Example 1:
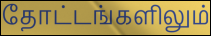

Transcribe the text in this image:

தோட்டங்களிலும்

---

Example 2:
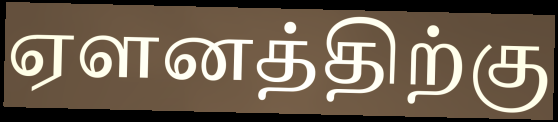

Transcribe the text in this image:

ஏளனத்திற்கு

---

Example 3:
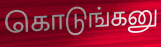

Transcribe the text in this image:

கொடுங்கனு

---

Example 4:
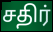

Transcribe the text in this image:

சதிர்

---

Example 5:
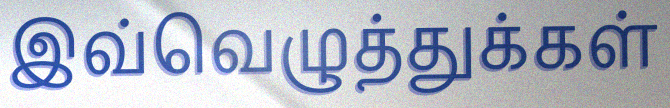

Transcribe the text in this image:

இவ்வெழுத்துக்கள்